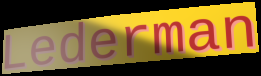
Lederman